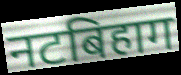
नटबिहाग